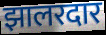
झालरदार